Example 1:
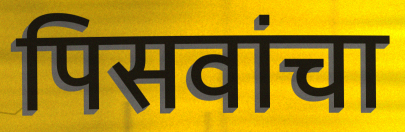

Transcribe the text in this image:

पिसवांचा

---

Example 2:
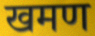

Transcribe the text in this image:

खमण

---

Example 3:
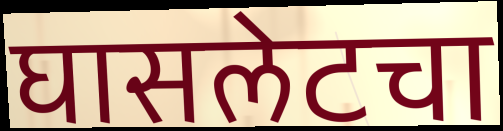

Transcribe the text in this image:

घासलेटचा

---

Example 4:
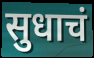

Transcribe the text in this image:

सुधाचं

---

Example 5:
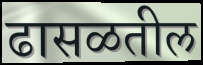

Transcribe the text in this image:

ढासळतील